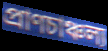
প্রাণচাঞ্চল্য